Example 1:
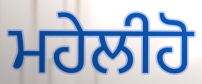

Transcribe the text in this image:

ਮਹੇਲੀਹੋ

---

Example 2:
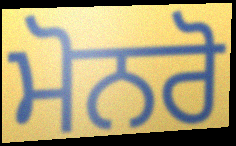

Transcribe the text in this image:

ਮੋਨਰੋ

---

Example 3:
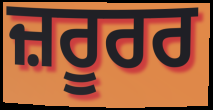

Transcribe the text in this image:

ਜ਼ਰੂਰਰ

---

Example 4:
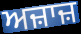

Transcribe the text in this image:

ਅਜ਼ਾਜ਼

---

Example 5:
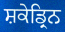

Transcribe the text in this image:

ਸ਼ਕੇਡ੍ਰਿਨ